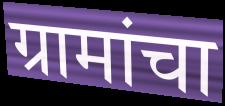
ग्रामांचा